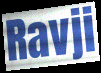
Ravji